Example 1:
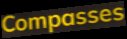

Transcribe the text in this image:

Compasses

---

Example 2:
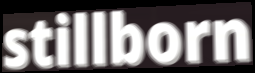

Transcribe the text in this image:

stillborn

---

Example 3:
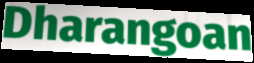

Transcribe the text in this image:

Dharangoan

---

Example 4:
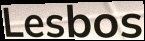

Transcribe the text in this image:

Lesbos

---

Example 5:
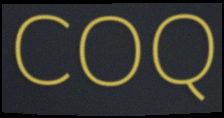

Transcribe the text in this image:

COQ